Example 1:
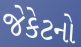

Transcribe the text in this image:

જેકેટનો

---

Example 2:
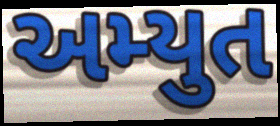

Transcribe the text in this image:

અમ્યુત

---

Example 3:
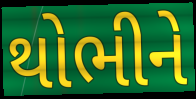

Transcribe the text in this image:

થોભીને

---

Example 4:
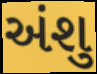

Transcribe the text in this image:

અંશુ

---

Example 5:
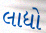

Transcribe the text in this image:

લાદ્યો